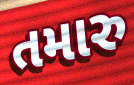
તમારુ